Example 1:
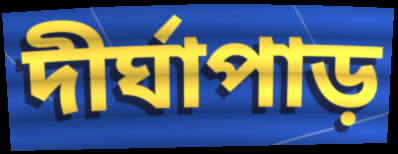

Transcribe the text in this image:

দীর্ঘাপাড়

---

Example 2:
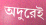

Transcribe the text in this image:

অদুরেই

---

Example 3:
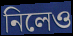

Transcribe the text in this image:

নিলেও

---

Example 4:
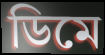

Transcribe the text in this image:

ডিমে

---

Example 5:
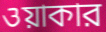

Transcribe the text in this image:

ওয়াকার